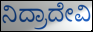
ನಿದ್ರಾದೇವಿ